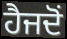
ਹੈਜਦੋਂ